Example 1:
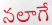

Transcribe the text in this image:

నలాగే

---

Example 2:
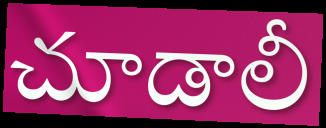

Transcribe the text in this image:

చూడాలీ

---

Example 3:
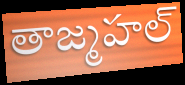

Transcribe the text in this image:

తాజ్మహల్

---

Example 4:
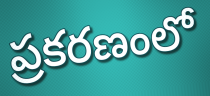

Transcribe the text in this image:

ప్రకరణంలో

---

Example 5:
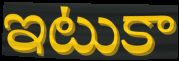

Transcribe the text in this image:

ఇటుకా